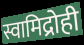
स्वामिद्रोही